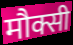
मौक्सी